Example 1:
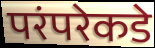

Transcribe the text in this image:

परंपरेकडे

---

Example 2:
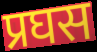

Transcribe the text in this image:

प्रघस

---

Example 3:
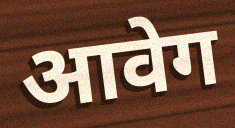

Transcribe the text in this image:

आवेग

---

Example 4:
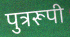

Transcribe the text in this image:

पुत्ररूपी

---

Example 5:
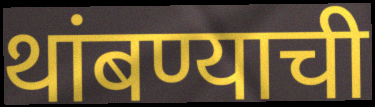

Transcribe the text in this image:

थांबण्याची